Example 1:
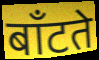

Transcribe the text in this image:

बाँटते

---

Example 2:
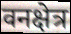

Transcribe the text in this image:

वनक्षेत्र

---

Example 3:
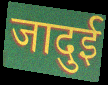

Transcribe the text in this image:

जादुई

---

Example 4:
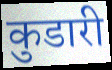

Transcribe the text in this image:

कुडारी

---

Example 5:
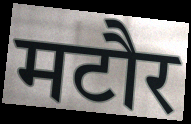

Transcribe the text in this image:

मटौर